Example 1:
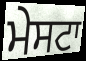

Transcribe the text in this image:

ਮੇਸਟਾ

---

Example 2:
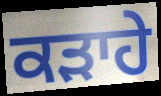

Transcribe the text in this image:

ਕੜਾਹੇ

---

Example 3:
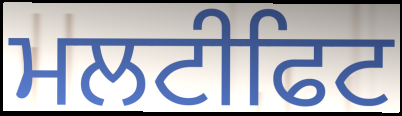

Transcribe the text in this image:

ਮਲਟੀਫਿਟ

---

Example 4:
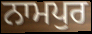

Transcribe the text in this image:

ਨਾਮਪੁਰ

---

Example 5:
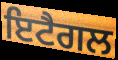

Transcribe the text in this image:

ਇਟੈਗਲ